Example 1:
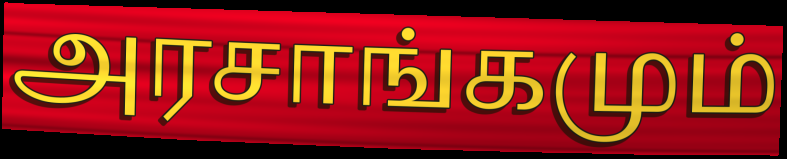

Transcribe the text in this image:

அரசாங்கமும்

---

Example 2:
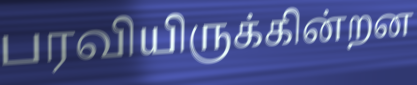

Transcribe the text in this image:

பரவியிருக்கின்றன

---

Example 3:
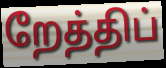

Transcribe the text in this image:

றேத்திப்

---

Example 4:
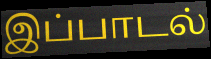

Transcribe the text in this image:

இப்பாடல்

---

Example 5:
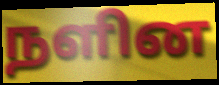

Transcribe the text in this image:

நளின